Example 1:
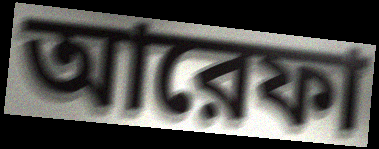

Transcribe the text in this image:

আরেফা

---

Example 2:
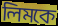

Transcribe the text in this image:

লিমকে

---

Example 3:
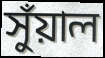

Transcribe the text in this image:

সুঁয়াল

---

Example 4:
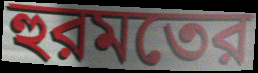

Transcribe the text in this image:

হুরমতের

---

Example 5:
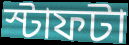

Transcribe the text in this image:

স্টাফটা